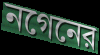
নগেনের